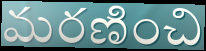
మరణించి